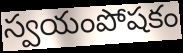
స్వయంపోషకం